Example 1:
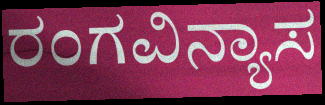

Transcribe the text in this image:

ರಂಗವಿನ್ಯಾಸ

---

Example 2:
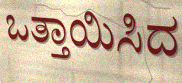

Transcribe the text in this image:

ಒತ್ತಾಯಿಸಿದ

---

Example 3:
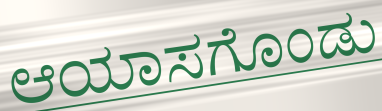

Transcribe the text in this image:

ಆಯಾಸಗೊಂಡು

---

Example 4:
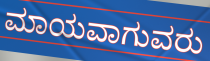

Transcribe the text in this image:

ಮಾಯವಾಗುವರು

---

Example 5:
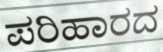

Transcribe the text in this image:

ಪರಿಹಾರದ